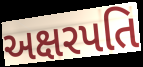
અક્ષરપતિ